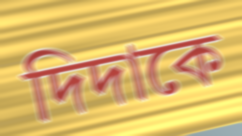
দিদাকে